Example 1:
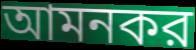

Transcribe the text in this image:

আমনকর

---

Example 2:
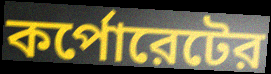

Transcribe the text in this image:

কর্পোরেটের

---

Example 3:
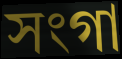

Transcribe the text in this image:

সংগা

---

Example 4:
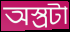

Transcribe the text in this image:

অস্ত্রটা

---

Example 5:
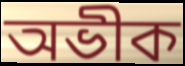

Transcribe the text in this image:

অভীক